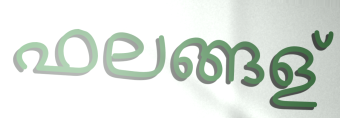
ഫലങ്ങള്